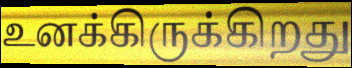
உனக்கிருக்கிறது